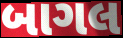
બાગલ